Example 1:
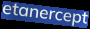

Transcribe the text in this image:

etanercept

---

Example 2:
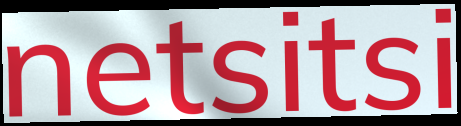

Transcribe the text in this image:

netsitsi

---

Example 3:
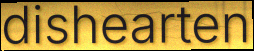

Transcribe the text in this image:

dishearten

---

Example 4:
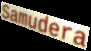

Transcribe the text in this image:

Samudera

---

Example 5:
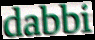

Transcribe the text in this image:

dabbi